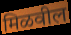
मिळवील